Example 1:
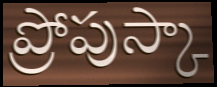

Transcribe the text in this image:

ప్రోపుస్కా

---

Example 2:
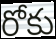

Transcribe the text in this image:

రోకు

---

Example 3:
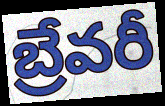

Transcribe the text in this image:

బ్రేవరీ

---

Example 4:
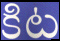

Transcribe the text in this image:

కిట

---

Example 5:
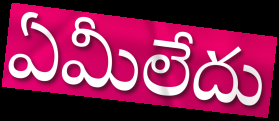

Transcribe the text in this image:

ఏమీలేదు